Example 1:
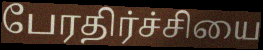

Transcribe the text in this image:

பேரதிர்ச்சியை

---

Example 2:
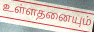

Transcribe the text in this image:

உள்ளதனையும்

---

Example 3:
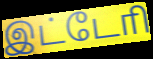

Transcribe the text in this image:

இட்டேரி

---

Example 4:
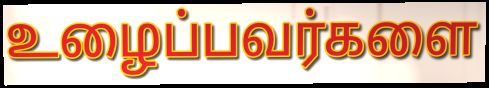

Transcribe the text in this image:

உழைப்பவர்களை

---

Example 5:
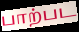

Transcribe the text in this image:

பாற்பட